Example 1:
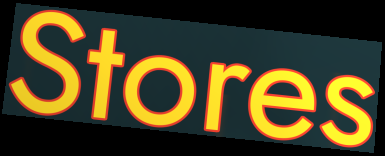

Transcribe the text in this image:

Stores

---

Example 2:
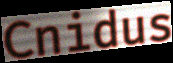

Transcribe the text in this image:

Cnidus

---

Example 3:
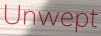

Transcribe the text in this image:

Unwept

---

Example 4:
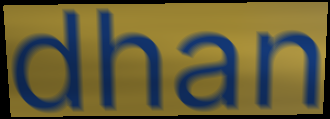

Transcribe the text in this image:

dhan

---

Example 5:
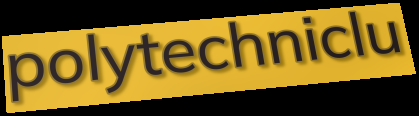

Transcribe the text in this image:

polytechniclu